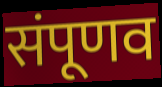
संपूणव